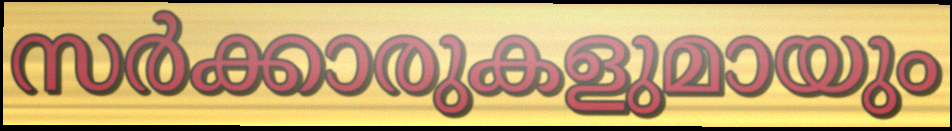
സർക്കാരുകളുമായും